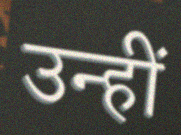
उन्हीं